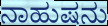
ನಾಹುಷನು